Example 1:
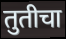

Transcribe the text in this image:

तुतीचा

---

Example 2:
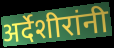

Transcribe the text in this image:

अर्देशीरांनी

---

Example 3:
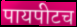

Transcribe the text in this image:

पायपीटच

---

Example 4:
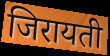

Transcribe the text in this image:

जिरायती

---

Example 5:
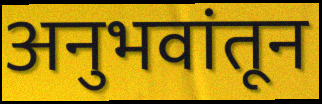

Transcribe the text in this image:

अनुभवांतून